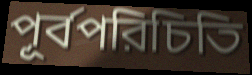
পূর্বপরিচিতি